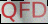
QFD